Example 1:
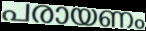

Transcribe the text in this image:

പരായണം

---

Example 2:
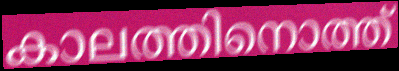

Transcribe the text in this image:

കാലത്തിനൊത്ത്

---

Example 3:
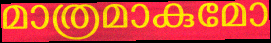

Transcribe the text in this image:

മാത്രമാകുമോ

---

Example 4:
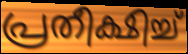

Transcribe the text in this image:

പ്രതീക്ഷിച്ച്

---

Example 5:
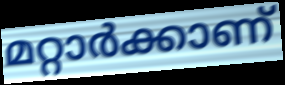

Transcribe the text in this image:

മറ്റാർക്കാണ്